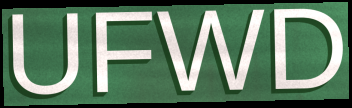
UFWD